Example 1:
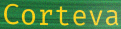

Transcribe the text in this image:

Corteva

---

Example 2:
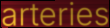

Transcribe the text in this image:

arteries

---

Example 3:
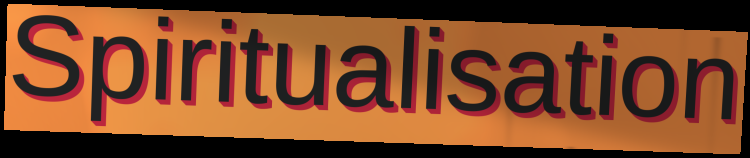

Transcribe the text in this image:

Spiritualisation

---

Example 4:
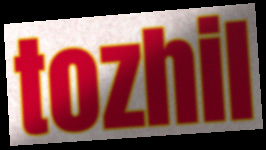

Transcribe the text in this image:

tozhil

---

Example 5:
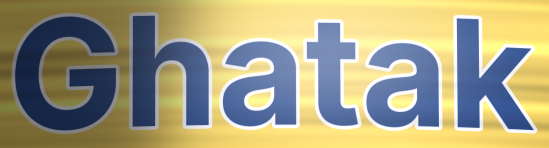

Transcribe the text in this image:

Ghatak